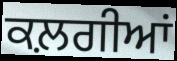
ਕਲ਼ਗੀਆਂ